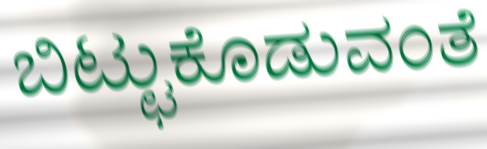
ಬಿಟ್ಟುಕೊಡುವಂತೆ